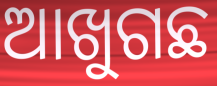
ଆଖୁଗଛ